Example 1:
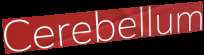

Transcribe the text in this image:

Cerebellum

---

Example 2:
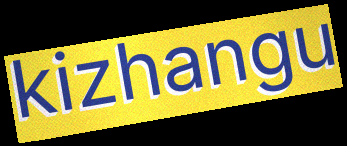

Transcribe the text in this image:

kizhangu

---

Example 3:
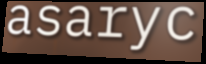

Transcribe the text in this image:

asaryc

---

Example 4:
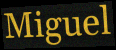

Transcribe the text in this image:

Miguel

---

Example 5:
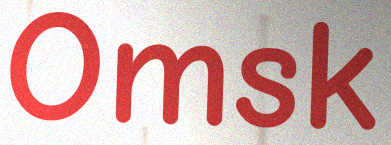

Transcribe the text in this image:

Omsk